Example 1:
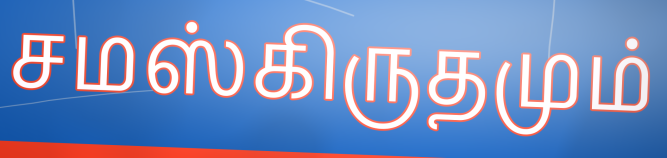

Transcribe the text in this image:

சமஸ்கிருதமும்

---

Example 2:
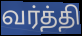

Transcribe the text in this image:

வர்த்தி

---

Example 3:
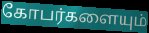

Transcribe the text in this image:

கோபர்களையும்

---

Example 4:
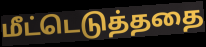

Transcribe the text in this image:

மீட்டெடுத்ததை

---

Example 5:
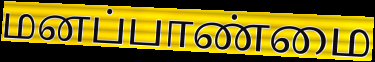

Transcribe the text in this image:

மனப்பாண்மை